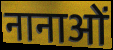
नानाओं